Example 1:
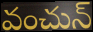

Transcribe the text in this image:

వంచున్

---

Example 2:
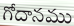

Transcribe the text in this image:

గోదానము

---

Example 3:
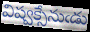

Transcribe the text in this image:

విష్వక్సేనుఁడు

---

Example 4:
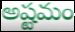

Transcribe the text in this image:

అష్టమం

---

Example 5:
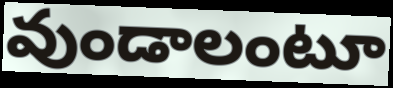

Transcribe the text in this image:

వుండాలంటూ